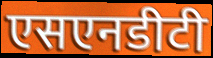
एसएनडीटी